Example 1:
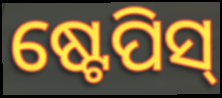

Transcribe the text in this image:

ଷ୍ଟେପିସ୍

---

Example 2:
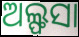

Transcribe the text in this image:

ଅଲ୍ଫସା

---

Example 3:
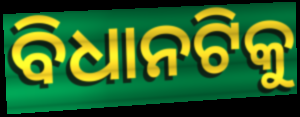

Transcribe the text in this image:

ବିଧାନଟିକୁ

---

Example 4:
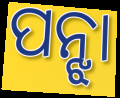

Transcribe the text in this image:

ପନ୍ଝା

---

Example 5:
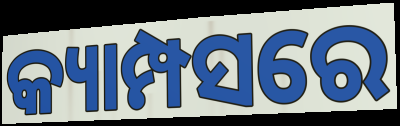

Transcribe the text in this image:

କ୍ୟାମ୍ପସରେ